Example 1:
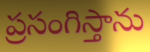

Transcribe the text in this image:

ప్రసంగిస్తాను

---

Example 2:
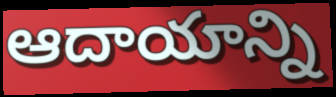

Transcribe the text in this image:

ఆదాయాన్ని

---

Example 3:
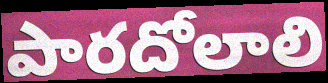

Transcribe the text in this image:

పారదోలాలి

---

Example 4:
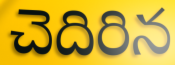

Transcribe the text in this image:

చెదిరిన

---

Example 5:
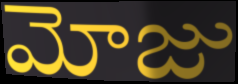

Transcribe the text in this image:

మోజు